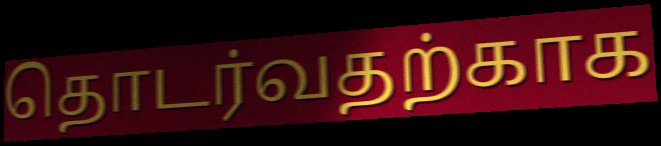
தொடர்வதற்காக